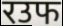
रउफ